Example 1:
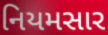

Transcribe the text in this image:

નિયમસાર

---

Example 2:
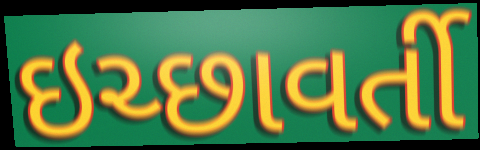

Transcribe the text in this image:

ઇચ્છાવર્તી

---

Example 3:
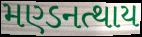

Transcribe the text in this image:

મણ્ડનત્થાય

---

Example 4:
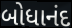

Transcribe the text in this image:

બોધાનંદ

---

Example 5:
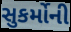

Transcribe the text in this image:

સુકર્મોની